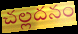
చల్లదనం